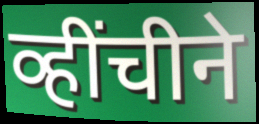
व्हींचीने